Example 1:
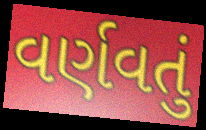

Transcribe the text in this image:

વર્ણવતું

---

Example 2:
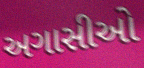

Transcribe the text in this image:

અગાસીઓ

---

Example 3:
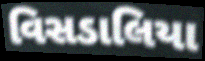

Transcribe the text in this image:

વિસડાલિયા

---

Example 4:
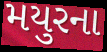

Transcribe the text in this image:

મયુરના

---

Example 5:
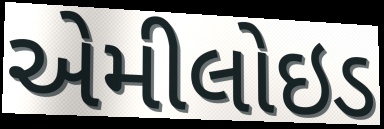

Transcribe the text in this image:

એમીલોઇડ